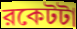
রকেটটা